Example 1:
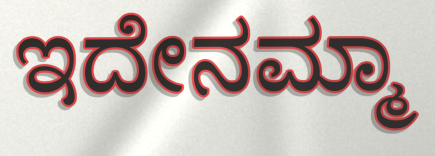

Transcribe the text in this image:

ಇದೇನಮ್ಮಾ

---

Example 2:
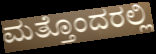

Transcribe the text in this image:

ಮತ್ತೊಂದರಲ್ಲಿ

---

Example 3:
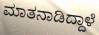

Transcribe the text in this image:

ಮಾತನಾಡಿದ್ದಾಳೆ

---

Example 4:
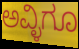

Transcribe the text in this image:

ಅವ್ಳಿಗೂ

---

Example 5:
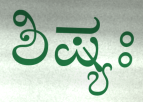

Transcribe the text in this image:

ಶಿಷ್ಯಃ